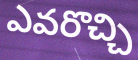
ఎవరొచ్చి